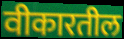
वीकारतील